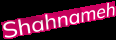
Shahnameh